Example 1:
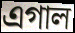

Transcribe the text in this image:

এগাল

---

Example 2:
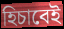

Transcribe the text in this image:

হিচাবেই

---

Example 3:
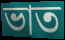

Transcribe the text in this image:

ভাত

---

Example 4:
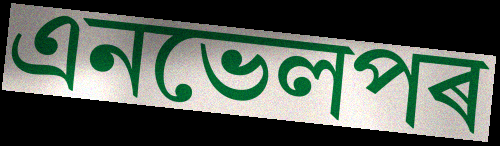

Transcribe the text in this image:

এনভেলপৰ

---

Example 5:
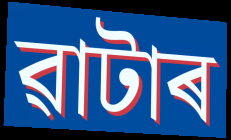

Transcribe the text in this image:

ৱাটাৰ